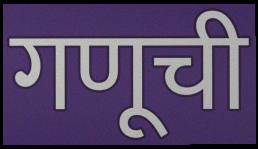
गणूची